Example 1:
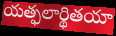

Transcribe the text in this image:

యత్ఫలార్థితయా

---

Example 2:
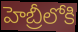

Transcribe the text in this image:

హెబ్రీలోకి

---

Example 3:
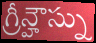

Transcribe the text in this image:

గ్రీన్హౌస్ను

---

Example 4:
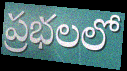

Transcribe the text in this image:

ప్రభలలో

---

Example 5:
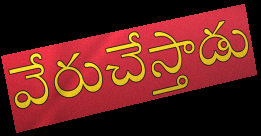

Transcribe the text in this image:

వేరుచేస్తాడు